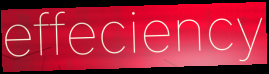
effeciency